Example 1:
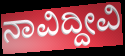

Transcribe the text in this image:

ನಾವಿದ್ದೀವಿ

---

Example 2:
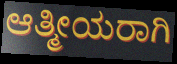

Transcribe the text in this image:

ಆತ್ಮೀಯರಾಗಿ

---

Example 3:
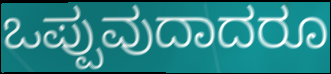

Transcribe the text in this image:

ಒಪ್ಪುವುದಾದರೂ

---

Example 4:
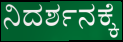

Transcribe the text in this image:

ನಿದರ್ಶನಕ್ಕೆ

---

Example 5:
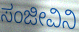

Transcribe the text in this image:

ಸಂಜೀವಿನಿ